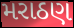
મરાઠણ